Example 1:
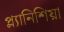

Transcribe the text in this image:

প্ল্যানিশিয়া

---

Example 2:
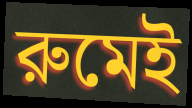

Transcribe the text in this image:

রুমেই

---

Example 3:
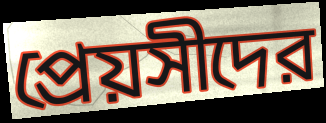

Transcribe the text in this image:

প্রেয়সীদের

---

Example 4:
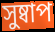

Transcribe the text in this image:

সুষ্বাপ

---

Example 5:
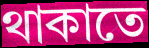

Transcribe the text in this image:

থাকাতে